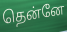
தென்னே